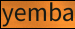
yemba